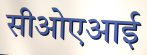
सीओएआई